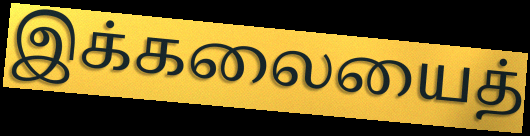
இக்கலையைத்